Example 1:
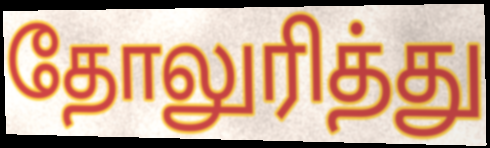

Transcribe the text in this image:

தோலுரித்து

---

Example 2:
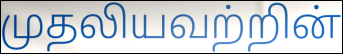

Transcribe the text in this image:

முதலியவற்றின்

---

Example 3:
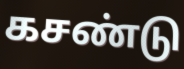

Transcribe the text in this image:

கசண்டு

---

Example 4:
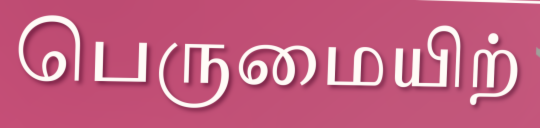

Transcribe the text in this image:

பெருமையிற்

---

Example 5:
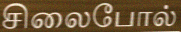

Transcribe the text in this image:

சிலைபோல்